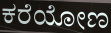
ಕರೆಯೋಣ